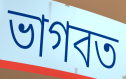
ভাগবত